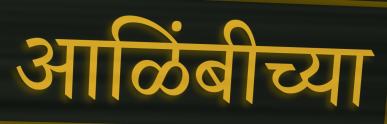
आळिंबीच्या